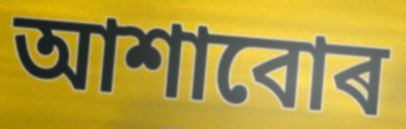
আশাবোৰ